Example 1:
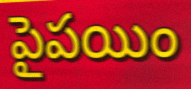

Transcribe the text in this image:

పైపయిం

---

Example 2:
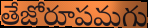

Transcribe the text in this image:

తేజోరూపమగు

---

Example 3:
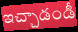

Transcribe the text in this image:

ఇచ్చాడండీ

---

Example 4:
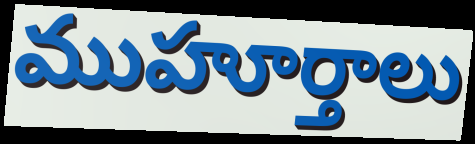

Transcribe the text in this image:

ముహూర్తాలు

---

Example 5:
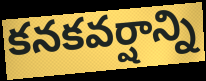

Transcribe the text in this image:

కనకవర్షాన్ని